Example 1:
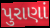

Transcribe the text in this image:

પુરાણાં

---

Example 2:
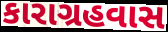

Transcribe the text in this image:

કારાગ્રહવાસ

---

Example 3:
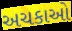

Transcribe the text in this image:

અચકાઓ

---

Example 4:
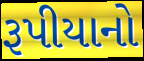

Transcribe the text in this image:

રૂપીયાનો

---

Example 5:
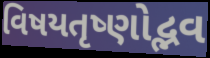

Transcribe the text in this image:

વિષયતૃષ્ણોદ્ભવ